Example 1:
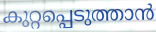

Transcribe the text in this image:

കുറ്റപ്പെടുത്താൻ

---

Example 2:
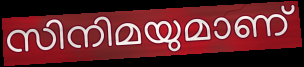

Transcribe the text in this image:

സിനിമയുമാണ്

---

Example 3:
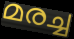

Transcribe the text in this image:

മരച്ച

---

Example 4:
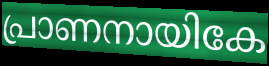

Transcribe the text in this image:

പ്രാണനായികേ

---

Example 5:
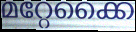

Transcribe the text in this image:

മറ്റേക്കൈ